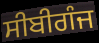
ਸੀਬੀਗੰਜ